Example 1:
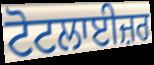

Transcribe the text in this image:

ਟੋਟਲਾਈਜ਼ਰ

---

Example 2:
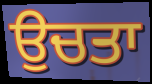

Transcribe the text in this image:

ਉਚਤਾ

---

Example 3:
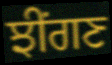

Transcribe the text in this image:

ਝੀਂਗਣ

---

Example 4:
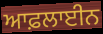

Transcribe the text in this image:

ਆਫ਼ਲਾਈਨ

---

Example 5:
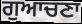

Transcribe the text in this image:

ਗੁਆਚਣਾ